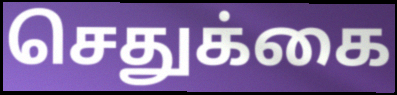
செதுக்கை